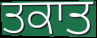
ਤਕਾਤ